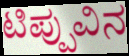
ಟಿಪ್ಪುವಿನ